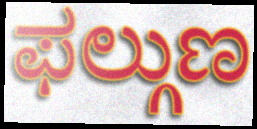
ಫಲ್ಗುಣ